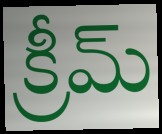
క్రీమ్